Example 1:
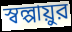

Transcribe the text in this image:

স্বল্পায়ুর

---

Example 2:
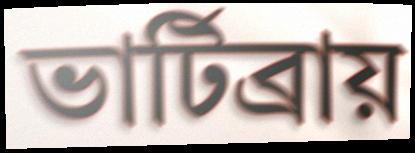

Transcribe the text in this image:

ভার্টিব্রায়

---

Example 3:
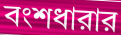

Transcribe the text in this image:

বংশধারার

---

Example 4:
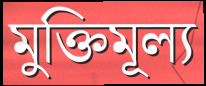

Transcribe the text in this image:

মুক্তিমূল্য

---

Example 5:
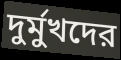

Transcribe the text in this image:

দুর্মুখদের